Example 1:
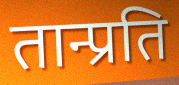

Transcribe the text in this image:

तान्प्रति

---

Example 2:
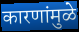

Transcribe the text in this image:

कारणांमुळे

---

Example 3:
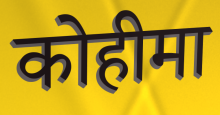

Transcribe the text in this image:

कोहीमा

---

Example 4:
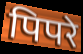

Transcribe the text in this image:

पिपरे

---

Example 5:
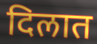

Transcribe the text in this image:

दिलात